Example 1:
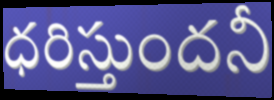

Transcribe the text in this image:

ధరిస్తుందనీ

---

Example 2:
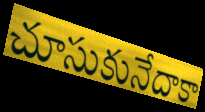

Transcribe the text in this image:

చూసుకునేదాకా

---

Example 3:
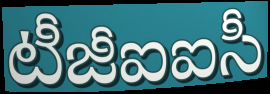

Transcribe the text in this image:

టీజీఐఐసీ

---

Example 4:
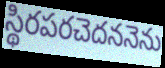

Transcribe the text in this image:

స్థిరపరచెదననెను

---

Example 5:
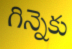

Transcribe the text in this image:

గిన్నెకు